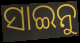
ସାଇନୁ